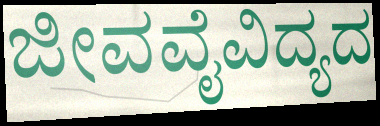
ಜೀವವೈವಿದ್ಯದ